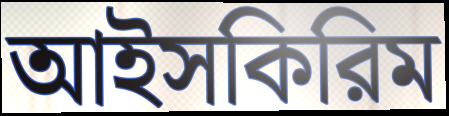
আইসকিরিম